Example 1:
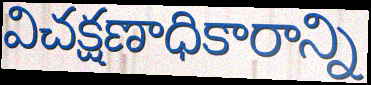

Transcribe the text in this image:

విచక్షణాధికారాన్ని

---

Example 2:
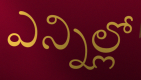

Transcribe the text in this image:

ఎన్నిల్లో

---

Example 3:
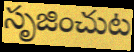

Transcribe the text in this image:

సృజించుట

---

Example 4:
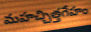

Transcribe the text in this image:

మహచ్చిత్తగేహం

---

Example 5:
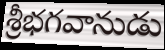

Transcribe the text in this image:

శ్రీభగవానుడు